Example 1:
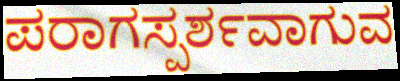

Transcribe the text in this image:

ಪರಾಗಸ್ಪರ್ಶವಾಗುವ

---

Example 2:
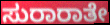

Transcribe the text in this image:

ಸುರಾರಾತೇ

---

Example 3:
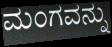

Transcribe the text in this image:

ಮಂಗವನ್ನು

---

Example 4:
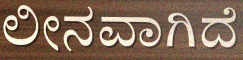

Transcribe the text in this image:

ಲೀನವಾಗಿದೆ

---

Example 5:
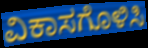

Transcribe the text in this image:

ವಿಕಾಸಗೊಳಿಸಿ